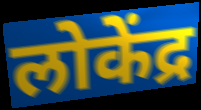
लोकेंद्र